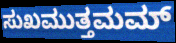
ಸುಖಮುತ್ತಮಮ್